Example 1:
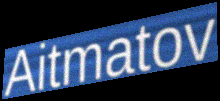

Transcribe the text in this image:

Aitmatov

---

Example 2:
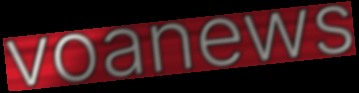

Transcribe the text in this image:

voanews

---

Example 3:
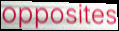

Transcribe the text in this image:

opposites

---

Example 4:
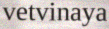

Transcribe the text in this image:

vetvinaya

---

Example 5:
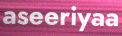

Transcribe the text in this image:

aseeriyaa